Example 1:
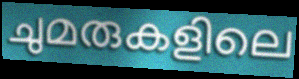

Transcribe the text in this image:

ചുമരുകളിലെ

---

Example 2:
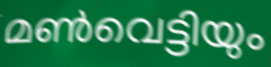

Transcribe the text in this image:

മൺവെട്ടിയും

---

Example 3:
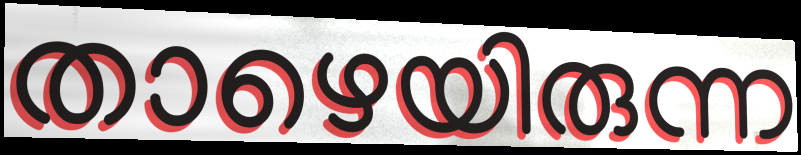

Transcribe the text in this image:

താഴെയിരുന്ന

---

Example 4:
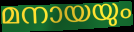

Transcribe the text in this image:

മനായയും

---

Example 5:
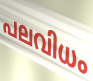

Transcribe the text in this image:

പലവിധം